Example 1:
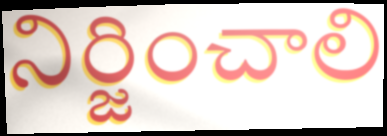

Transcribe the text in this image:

నిర్జించాలి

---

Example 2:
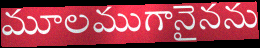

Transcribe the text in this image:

మూలముగానైనను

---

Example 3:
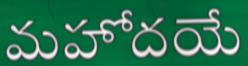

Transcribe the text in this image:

మహోదయే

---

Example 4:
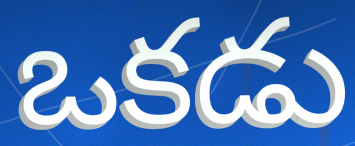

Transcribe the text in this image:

ఒకడు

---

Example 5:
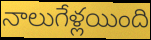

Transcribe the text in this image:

నాలుగేళ్లయింది